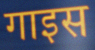
गाइस